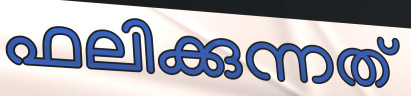
ഫലിക്കുന്നത്